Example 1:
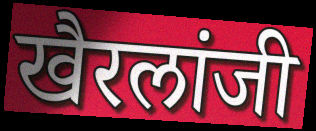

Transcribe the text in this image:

खैरलांजी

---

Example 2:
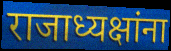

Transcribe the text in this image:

राजाध्यक्षांना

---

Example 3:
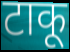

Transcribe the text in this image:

टाकू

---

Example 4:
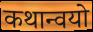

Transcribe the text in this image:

कथान्वयो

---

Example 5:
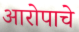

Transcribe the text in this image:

आरोपाचे